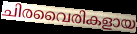
ചിരവൈരികളായ